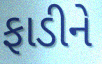
ફાડીને